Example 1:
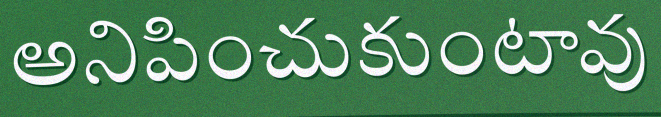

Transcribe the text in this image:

అనిపించుకుంటావు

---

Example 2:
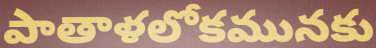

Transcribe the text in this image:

పాతాళలోకమునకు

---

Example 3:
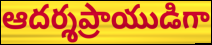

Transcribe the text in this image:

ఆదర్శప్రాయుడిగా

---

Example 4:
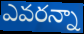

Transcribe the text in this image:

ఎవరన్నా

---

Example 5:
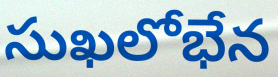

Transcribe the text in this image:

సుఖలోభేన